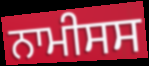
ਨਾਮੀਸਸ